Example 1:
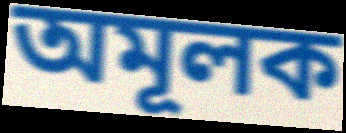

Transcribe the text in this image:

অমূলক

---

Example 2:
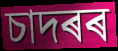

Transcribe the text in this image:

চাদৰৰ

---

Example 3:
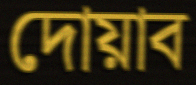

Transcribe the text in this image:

দোয়াব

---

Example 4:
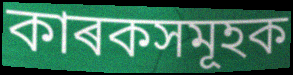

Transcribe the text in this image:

কাৰকসমূহক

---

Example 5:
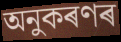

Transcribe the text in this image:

অনুকৰণৰ